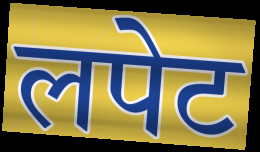
लपेट